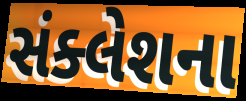
સંક્લેશના